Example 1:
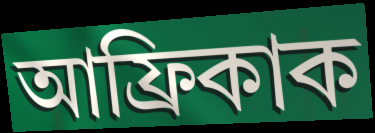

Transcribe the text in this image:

আফ্ৰিকাক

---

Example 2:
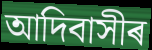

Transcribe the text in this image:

আদিবাসীৰ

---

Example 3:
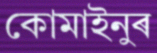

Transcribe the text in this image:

কোমাইনুৰ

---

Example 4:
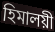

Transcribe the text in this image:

হিমালয়ী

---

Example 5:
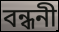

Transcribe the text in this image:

বন্ধনী